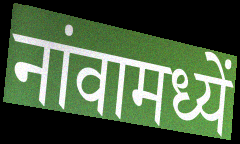
नांवामध्यें